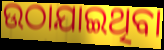
ଉଠାଯାଇଥିବା